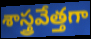
శాస్త్రవేత్తగా